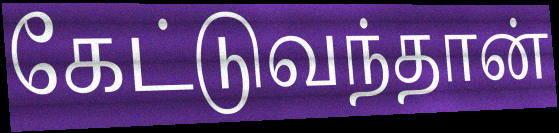
கேட்டுவந்தான்